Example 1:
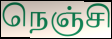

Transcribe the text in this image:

நெஞ்சி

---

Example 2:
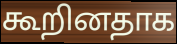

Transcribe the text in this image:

கூறினதாக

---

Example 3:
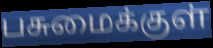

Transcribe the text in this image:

பசுமைக்குள்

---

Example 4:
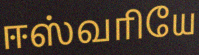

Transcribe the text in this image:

ஈஸ்வரியே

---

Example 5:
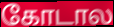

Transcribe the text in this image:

கோடால